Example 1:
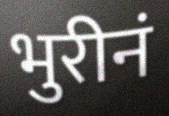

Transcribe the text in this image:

भुरीनं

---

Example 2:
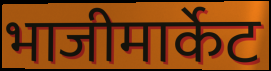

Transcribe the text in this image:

भाजीमार्केट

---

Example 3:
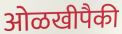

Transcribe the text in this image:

ओळखीपैकी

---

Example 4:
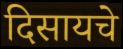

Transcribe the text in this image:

दिसायचे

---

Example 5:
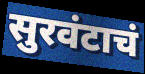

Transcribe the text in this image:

सुरवंटाचं